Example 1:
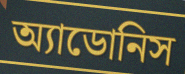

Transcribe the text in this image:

অ্যাডোনিস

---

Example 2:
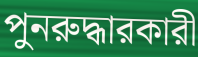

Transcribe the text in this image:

পুনরুদ্ধারকারী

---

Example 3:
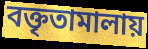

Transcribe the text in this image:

বক্তৃতামালায়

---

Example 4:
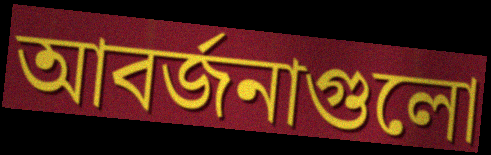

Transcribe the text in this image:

আবর্জনাগুলো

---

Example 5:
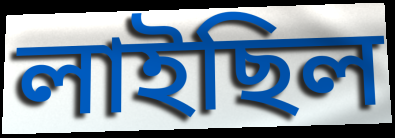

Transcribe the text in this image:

লাইছিল